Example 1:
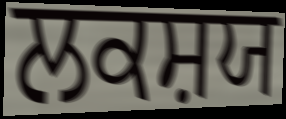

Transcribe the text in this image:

ਲਕਸ਼ਯ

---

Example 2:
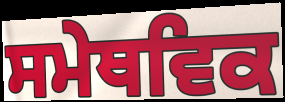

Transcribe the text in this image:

ਸਮੇਥਵਿਕ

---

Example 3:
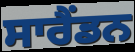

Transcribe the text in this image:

ਸਾਰੈਂਡਨ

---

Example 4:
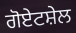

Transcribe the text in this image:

ਗੋਏਟਸ਼ੇਲ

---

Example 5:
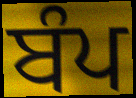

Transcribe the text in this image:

ਬੰਪ